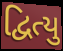
દ્વિત્યુ